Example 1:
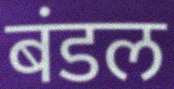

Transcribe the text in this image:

बंडल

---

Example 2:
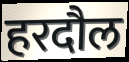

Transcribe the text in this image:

हरदौल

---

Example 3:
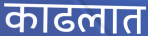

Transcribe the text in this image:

काढलात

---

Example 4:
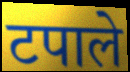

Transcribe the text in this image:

टपाले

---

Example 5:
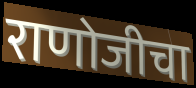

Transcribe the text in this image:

राणोजीचा